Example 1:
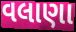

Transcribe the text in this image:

વલાણા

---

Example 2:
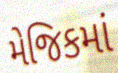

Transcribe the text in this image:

મેજિકમાં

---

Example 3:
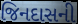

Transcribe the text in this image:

જિનદાસની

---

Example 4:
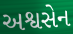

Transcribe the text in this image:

અશ્વસેન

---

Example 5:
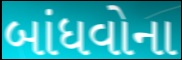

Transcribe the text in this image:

બાંધવોના